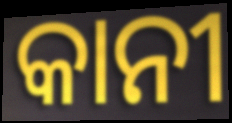
କାନୀ